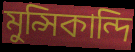
মুন্সিকান্দি